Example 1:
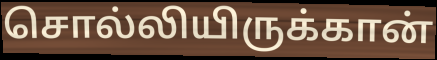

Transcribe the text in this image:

சொல்லியிருக்கான்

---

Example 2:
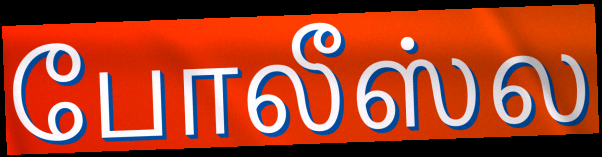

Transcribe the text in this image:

போலீஸ்ல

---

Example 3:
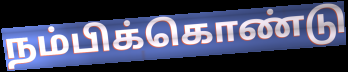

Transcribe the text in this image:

நம்பிக்கொண்டு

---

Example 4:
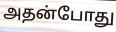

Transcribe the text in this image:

அதன்போது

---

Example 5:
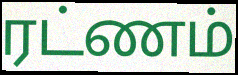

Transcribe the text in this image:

ரட்ணம்